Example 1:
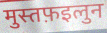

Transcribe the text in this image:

मुस्तफ़इलुन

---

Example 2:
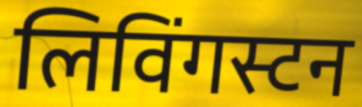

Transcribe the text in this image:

लिविंगस्टन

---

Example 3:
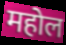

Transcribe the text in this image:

महोल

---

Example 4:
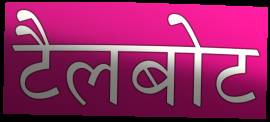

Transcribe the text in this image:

टैलबोट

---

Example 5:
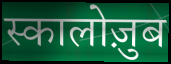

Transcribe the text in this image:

स्कालोज़ुब